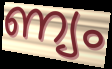
ണ്യം